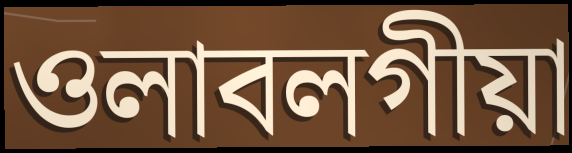
ওলাবলগীয়া